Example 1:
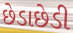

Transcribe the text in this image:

છેડાછેડી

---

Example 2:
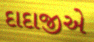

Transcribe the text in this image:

દાદાજીએ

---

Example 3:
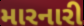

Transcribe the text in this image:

મારનારી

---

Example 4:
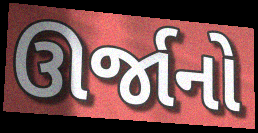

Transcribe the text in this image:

ઊર્જાનો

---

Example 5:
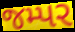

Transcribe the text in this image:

જમ્પર